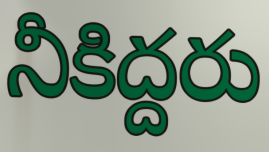
నీకిద్దరు